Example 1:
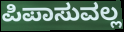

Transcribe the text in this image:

ಪಿಪಾಸುವಲ್ಲ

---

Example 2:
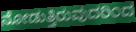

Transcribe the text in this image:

ನೋಡುತ್ತಿರುವುದರಿಂದ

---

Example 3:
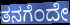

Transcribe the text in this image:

ತನಗೆಂದೇ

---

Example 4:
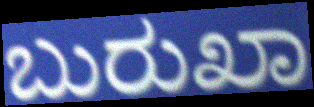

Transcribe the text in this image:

ಬುರುಖಾ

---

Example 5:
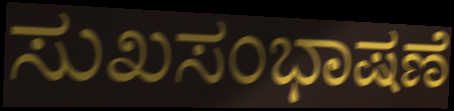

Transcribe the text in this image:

ಸುಖಸಂಭಾಷಣೆ